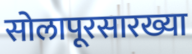
सोलापूरसारख्या